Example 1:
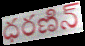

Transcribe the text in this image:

ధరణిన్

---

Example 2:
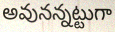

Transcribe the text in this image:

అవునన్నట్టుగా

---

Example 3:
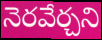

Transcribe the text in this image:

నెరవేర్చని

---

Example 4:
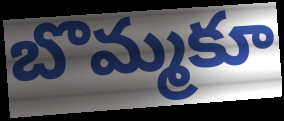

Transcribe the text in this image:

బొమ్మకూ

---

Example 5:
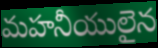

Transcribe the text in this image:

మహనీయులైన